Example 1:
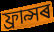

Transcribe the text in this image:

ফ্ৰান্সৰ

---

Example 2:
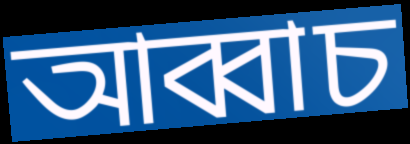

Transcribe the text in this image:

আব্বাচ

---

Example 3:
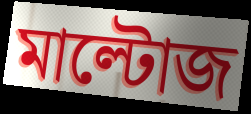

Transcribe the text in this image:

মাল্টোজ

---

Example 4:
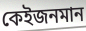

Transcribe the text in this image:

কেইজনমান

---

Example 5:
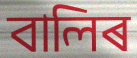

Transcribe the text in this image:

বালিৰ